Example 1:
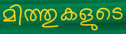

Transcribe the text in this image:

മിത്തുകളുടെ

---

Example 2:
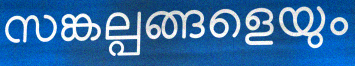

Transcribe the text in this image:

സങ്കല്പങ്ങളെയും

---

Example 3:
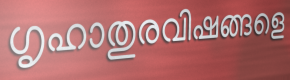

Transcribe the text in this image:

ഗൃഹാതുരവിഷങ്ങളെ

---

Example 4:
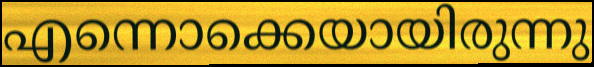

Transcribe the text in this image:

എന്നൊക്കെയായിരുന്നു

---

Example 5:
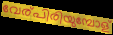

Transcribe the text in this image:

വേര്പിരിയുമ്പോള്